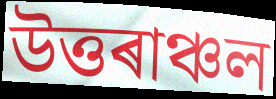
উত্তৰাঞ্চল